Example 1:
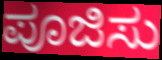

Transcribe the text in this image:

ಪೂಜಿಸು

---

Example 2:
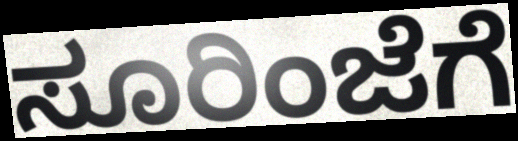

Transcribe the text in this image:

ಸೂರಿಂಜೆಗೆ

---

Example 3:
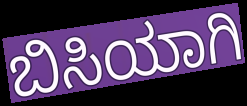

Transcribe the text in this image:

ಬಿಸಿಯಾಗಿ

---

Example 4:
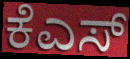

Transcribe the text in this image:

ಕೆಎಸ್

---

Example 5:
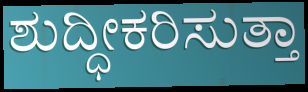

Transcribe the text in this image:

ಶುದ್ಧೀಕರಿಸುತ್ತಾ